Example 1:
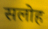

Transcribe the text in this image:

सलोह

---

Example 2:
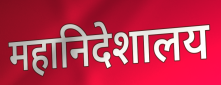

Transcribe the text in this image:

महानिदेशालय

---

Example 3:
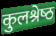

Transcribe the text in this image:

कुलश्रेष्‍ठ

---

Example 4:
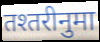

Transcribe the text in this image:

तश्तरीनुमा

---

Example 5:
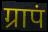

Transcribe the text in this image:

ग्रापं